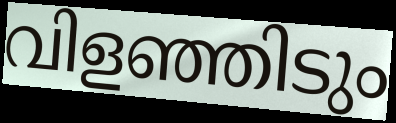
വിളഞ്ഞിടും